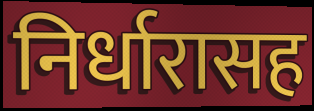
निर्धारासह